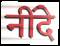
नींदे